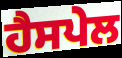
ਹੈਸਪੇਲ